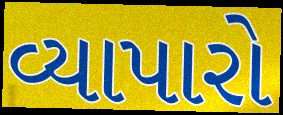
વ્યાપારો